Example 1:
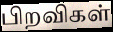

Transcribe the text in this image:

பிறவிகள்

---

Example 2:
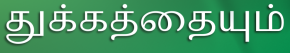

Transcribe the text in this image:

துக்கத்தையும்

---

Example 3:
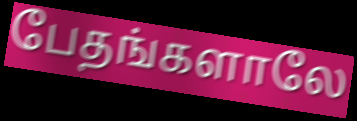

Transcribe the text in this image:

பேதங்களாலே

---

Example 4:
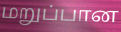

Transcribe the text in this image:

மறுப்பான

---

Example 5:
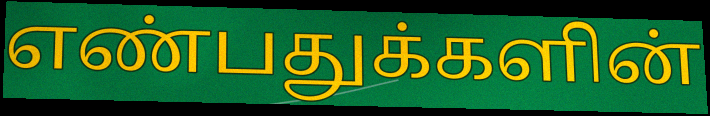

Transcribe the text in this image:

எண்பதுக்களின்